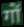
गों